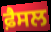
ਫ਼ੈਸਲ